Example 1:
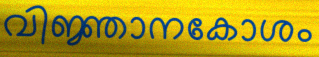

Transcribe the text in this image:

വിജ്ഞാനകോശം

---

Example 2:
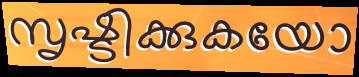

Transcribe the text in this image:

സൃഷ്ടിക്കുകയോ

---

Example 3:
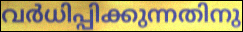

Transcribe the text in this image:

വർധിപ്പിക്കുന്നതിനു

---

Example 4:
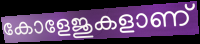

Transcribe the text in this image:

കോളേജുകളാണ്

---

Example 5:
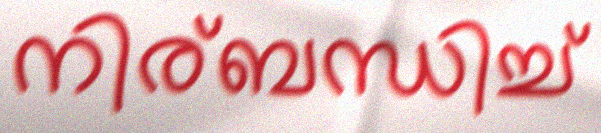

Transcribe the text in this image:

നിര്ബന്ധിച്ച്